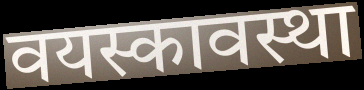
वयस्कावस्था